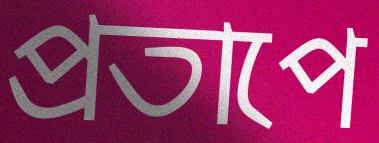
প্রতাপে